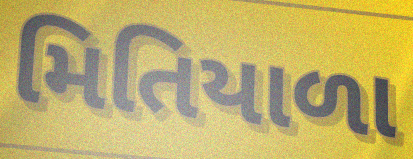
મિતિયાળા